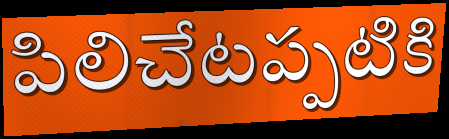
పిలిచేటప్పటికి